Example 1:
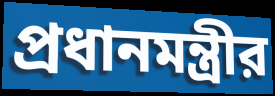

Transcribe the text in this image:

প্রধানমন্ত্রীর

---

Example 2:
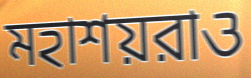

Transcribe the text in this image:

মহাশয়রাও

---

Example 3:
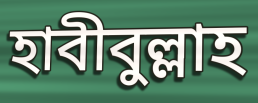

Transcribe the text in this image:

হাবীবুল্লাহ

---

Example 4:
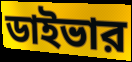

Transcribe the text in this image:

ডাইভার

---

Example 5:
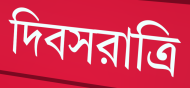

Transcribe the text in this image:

দিবসরাত্রি